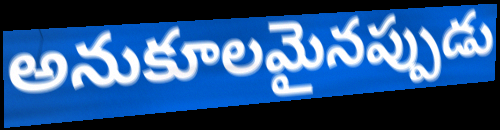
అనుకూలమైనప్పుడు